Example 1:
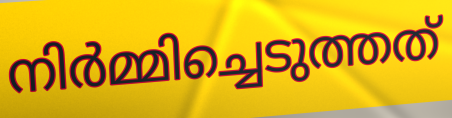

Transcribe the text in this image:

നിർമ്മിച്ചെടുത്തത്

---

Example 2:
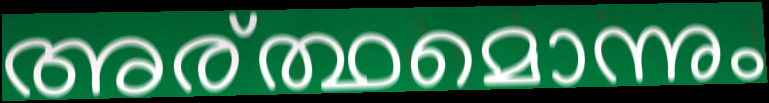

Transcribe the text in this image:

അര്ത്ഥമൊന്നും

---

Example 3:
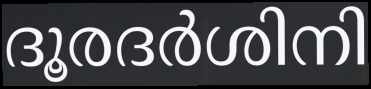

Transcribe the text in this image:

ദൂരദർശിനി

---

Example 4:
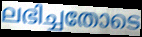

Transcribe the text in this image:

ലഭിച്ചതോടെ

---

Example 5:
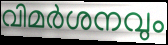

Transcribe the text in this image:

വിമർശനവും